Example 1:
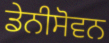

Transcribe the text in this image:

ਡੇਨੀਸੋਵਨ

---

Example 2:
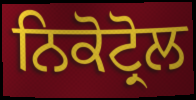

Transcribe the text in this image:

ਨਿਕੋਟ੍ਰੋਲ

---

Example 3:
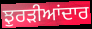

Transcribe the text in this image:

ਝੁਰੜੀਆਂਦਾਰ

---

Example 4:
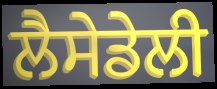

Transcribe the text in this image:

ਲੈਸੇਡੇਲੀ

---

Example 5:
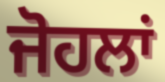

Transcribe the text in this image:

ਜੋਹਲਾਂ